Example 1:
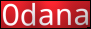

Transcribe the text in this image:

Odana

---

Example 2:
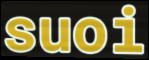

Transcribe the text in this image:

suoi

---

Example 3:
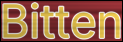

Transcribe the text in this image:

Bitten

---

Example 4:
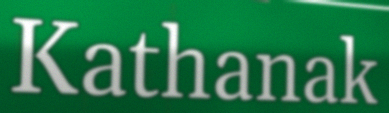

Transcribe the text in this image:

Kathanak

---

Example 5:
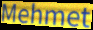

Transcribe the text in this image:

Mehmet